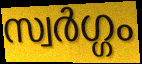
സ്വർഗ്ഗം